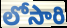
లోసారి